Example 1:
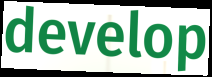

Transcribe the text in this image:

develop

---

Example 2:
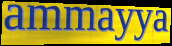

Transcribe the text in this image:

ammayya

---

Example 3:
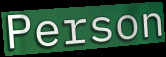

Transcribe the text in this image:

Person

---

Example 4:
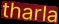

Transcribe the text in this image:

tharla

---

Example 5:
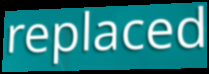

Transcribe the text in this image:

replaced